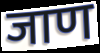
जाण